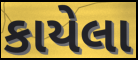
કાયેલા